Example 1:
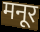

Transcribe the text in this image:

मनूर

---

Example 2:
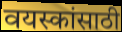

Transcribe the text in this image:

वयस्कांसाठी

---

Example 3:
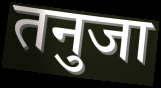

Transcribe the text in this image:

तनुजा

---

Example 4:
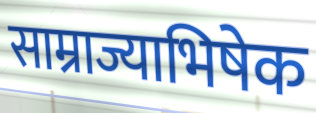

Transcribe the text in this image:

साम्राज्याभिषेक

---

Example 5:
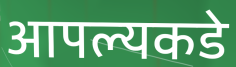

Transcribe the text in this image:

आपल्यकडे